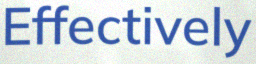
Effectively